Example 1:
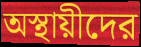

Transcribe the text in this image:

অস্থায়ীদের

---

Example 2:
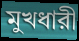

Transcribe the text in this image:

মুখধারী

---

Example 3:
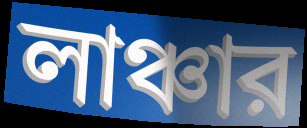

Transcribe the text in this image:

লাঞ্চার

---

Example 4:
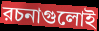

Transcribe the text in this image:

রচনাগুলোই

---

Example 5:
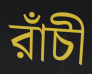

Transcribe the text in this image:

রাঁচী